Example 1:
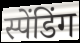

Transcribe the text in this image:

स्पेंडिंग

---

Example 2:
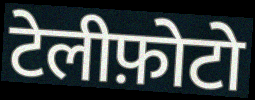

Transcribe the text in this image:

टेलीफ़ोटो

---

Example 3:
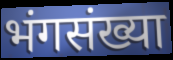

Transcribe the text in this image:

भंगसंख्या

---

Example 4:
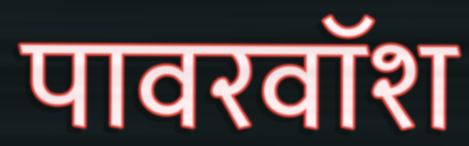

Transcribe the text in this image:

पावरवॉश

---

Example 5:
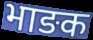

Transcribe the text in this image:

भाङक